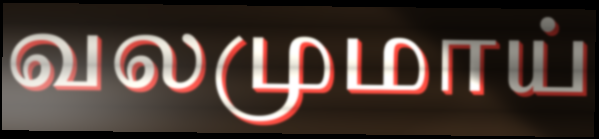
வலமுமாய்